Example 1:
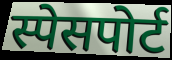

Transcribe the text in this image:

स्पेसपोर्ट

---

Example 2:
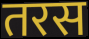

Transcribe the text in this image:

तरस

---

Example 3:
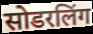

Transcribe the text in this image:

सोडरलिंग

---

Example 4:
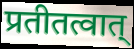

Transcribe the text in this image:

प्रतीतत्वात्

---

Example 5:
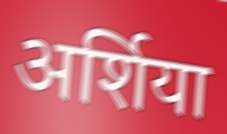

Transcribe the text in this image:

अर्शिया